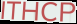
ITHCP